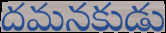
దమనకుడు